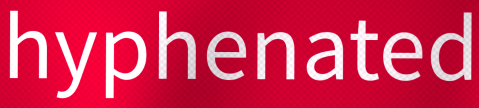
hyphenated